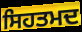
ਸਿਹਤਮਦ